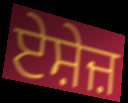
ਏਸ਼ੇਜ਼